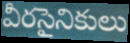
వీరసైనికులు